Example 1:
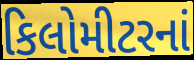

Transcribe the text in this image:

કિલોમીટરનાં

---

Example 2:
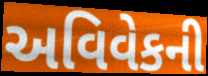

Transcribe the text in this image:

અવિવેકની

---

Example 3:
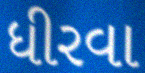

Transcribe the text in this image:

ધીરવા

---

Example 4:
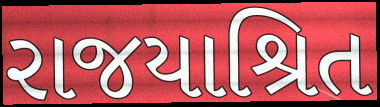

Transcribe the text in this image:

રાજયાશ્રિત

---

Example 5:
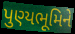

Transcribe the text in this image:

પુણ્યભૂમિને